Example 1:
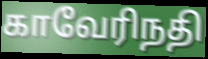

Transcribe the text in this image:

காவேரிநதி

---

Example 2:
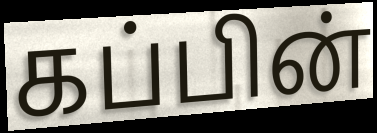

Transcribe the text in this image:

கப்பின்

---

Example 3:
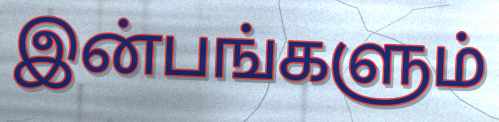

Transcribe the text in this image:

இன்பங்களும்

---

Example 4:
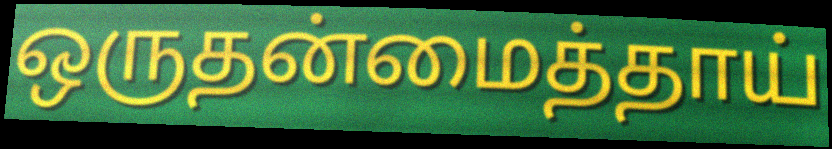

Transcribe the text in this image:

ஒருதன்மைத்தாய்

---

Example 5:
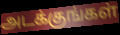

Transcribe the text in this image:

அடக்குங்கள்